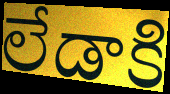
లేడాకి